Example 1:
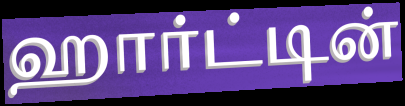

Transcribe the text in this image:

ஹார்ட்டின்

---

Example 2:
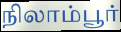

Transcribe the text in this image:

நிலாம்பூர்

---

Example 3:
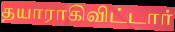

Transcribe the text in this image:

தயாராகிவிட்டார்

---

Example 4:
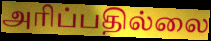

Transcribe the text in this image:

அரிப்பதில்லை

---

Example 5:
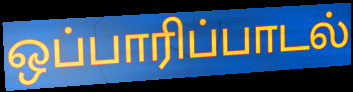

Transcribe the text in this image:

ஒப்பாரிப்பாடல்